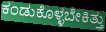
ಕಂಡುಕೊಳ್ಳಬೇಕಿತ್ತು